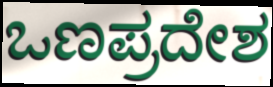
ಒಣಪ್ರದೇಶ